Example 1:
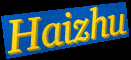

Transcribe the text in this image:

Haizhu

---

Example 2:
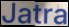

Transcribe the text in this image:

Jatra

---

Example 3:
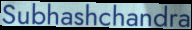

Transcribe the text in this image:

Subhashchandra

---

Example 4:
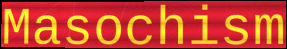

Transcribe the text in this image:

Masochism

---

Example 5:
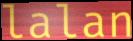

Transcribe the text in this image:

lalan